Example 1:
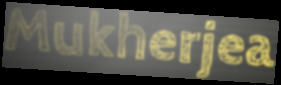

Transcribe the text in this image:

Mukherjea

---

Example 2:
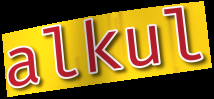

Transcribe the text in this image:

alkul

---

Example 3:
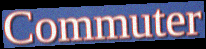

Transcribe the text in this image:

Commuter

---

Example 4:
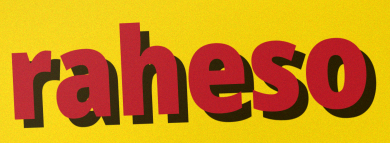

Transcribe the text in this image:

raheso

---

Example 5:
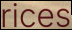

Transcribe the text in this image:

rices